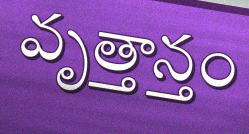
వృత్తాన్తం